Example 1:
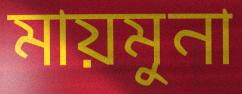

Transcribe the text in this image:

মায়মুনা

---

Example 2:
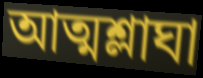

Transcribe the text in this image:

আত্মশ্লাঘা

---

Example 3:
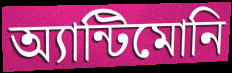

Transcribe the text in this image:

অ্যান্টিমোনি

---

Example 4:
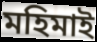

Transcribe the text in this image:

মহিমাই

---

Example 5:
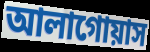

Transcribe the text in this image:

আলাগোয়াস